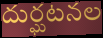
దుర్ఘటనల